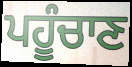
ਪਹੂੰਚਾਣ